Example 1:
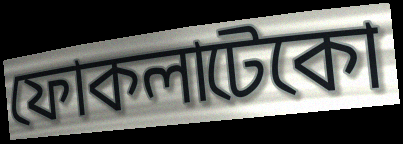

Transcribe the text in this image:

ফোকলাটেকো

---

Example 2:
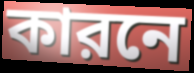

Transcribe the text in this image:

কারনে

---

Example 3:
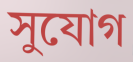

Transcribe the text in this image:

সুযোগ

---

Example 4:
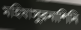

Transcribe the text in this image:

মহিষাসুরনাশিনি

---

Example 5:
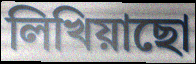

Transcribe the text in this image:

লিখিয়াছো